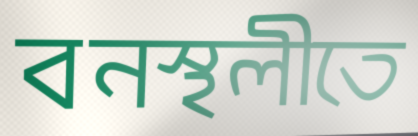
বনস্থলীতে